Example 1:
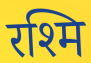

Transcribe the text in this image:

रश्मि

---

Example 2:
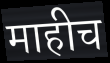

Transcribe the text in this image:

माहीच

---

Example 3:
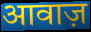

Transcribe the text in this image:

आवाज़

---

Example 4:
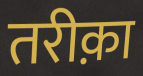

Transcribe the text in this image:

तरीक़ा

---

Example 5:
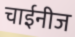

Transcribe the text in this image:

चाईनीज